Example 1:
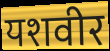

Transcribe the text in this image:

यशवीर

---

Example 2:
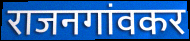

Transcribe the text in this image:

राजनगांवकर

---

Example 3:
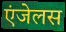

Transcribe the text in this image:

एंजेलस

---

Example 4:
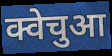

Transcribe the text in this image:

क्वेचुआ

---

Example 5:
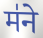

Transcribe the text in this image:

म॑ने